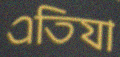
এতিযা